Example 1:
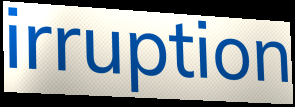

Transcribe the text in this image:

irruption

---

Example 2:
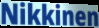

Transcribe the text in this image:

Nikkinen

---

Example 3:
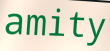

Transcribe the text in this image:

amity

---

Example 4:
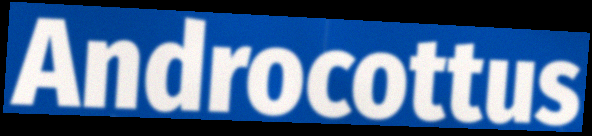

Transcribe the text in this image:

Androcottus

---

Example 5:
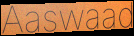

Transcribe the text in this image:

Aaswaad